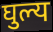
घुल्य